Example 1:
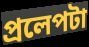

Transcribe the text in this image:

প্রলেপটা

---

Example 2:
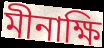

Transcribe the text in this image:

মীনাক্ষি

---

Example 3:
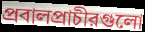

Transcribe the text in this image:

প্রবালপ্রাচীরগুলো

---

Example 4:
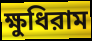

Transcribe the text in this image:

ক্ষুধিরাম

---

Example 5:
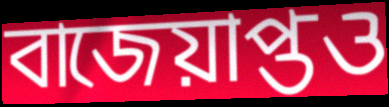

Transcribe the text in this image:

বাজেয়াপ্তও